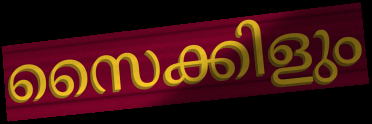
സൈക്കിളും